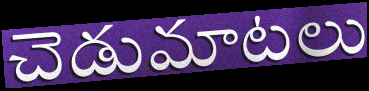
చెడుమాటలు